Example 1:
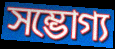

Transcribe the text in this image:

সম্ভোগ্য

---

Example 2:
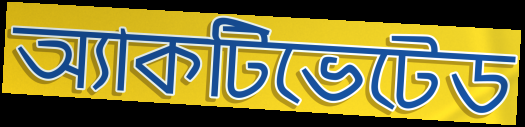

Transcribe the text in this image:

অ্যাকটিভেটেড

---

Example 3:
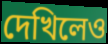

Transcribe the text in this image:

দেখিলেও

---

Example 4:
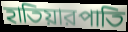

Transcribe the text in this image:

হাতিয়ারপাতি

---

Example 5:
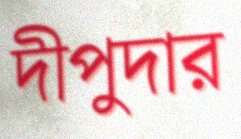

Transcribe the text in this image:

দীপুদার